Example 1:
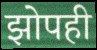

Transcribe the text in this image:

झोपही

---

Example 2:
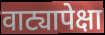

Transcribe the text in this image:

वाट्यापेक्षा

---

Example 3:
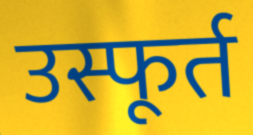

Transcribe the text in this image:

उस्फूर्त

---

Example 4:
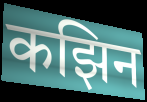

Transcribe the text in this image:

कझिन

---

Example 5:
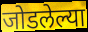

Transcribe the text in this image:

जोडलेल्या